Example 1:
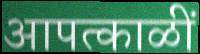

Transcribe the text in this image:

आपत्काळीं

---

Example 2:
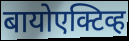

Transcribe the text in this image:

बायोएक्टिव्ह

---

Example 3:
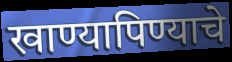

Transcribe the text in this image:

खाण्यापिण्याचे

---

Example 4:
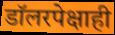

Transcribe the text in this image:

डॉलरपेक्षाही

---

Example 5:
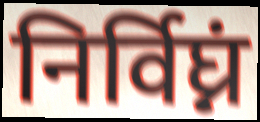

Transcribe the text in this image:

निर्विघ्नं